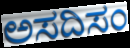
ಅಸದಿಸಂ